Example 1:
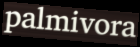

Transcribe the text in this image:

palmivora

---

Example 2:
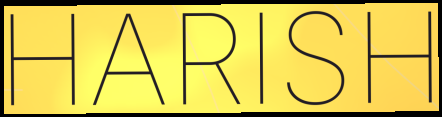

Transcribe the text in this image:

HARISH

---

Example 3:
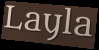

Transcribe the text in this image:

Layla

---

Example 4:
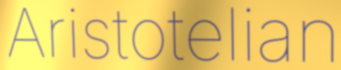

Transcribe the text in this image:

Aristotelian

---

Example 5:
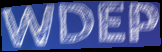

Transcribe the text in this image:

WDEP